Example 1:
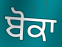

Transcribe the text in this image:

ਬੋਕਾ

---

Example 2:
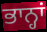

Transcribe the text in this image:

ਭਾਨ੍ਹਾਂ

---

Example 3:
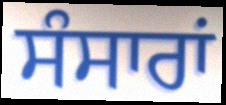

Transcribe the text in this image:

ਸੰਸਾਰਾਂ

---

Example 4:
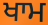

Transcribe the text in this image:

ਖਾਮ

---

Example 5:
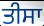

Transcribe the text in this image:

ਤੀਸਾ